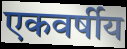
एकवर्षीय